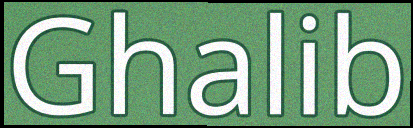
Ghalib